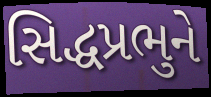
સિદ્ધપ્રભુને